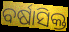
ବର୍ଷାସିକ୍ତ